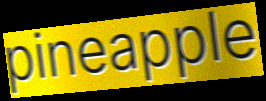
pineapple